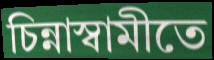
চিন্নাস্বামীতে